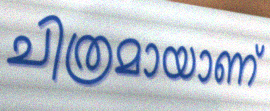
ചിത്രമായാണ്